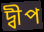
দ্বীপ